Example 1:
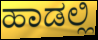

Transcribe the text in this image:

ಹಾಡಲ್ಲಿ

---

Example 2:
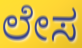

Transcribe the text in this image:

ಲೇಸ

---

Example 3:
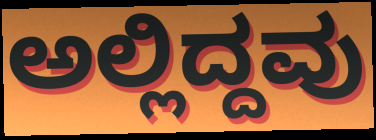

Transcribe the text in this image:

ಅಲ್ಲಿದ್ದವು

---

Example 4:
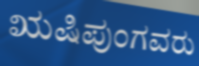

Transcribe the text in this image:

ಋಷಿಪುಂಗವರು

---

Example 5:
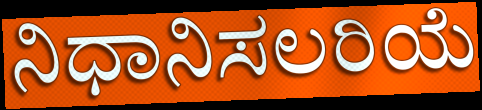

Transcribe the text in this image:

ನಿಧಾನಿಸಲರಿಯೆ